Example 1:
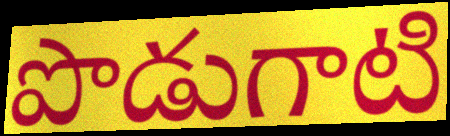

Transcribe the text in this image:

పొడుగాటి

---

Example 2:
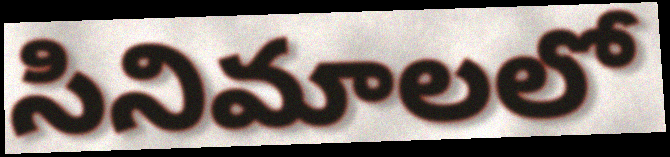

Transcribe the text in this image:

సినిమాలలో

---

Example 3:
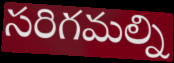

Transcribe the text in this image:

సరిగమల్ని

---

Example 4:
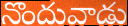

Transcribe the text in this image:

నొందువాడు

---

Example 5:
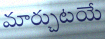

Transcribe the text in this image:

మార్చుటయే